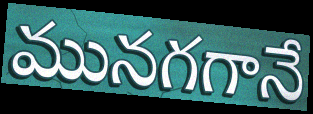
మునగగానే